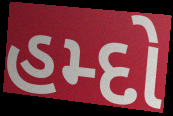
હમ્દો